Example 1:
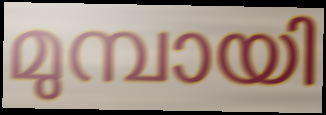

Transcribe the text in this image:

മുമ്പായി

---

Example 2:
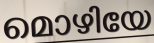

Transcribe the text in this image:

മൊഴിയേ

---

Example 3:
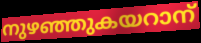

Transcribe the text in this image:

നുഴഞ്ഞുകയറാന്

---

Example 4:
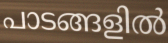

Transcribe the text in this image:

പാടങ്ങളിൽ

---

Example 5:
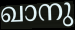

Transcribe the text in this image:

ഖാനു